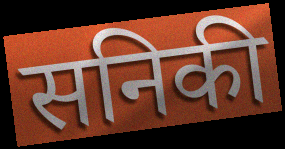
सनिकी